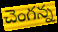
చెంగన్న